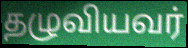
தழுவியவர்